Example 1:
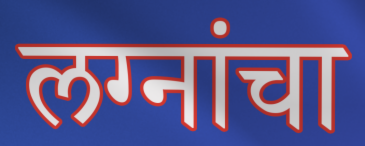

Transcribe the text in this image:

लग्नांचा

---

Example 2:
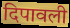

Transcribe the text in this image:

दिपावली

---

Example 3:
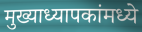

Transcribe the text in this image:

मुख्याध्यापकांमध्ये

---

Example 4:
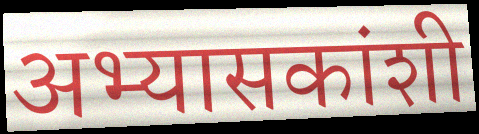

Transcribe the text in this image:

अभ्यासकांशी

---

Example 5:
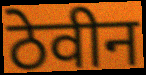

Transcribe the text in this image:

ठेवीन